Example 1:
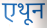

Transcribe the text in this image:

एथून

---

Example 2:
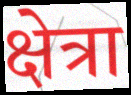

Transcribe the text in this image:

क्षेत्रा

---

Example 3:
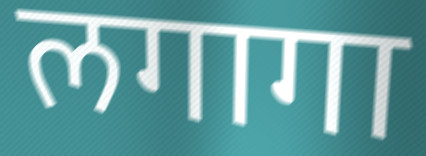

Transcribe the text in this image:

लगागा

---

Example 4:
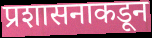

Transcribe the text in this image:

प्रशासनाकडून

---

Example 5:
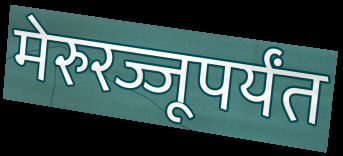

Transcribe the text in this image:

मेरुरज्जूपर्यंत